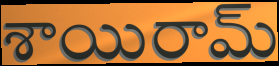
శాయిరామ్